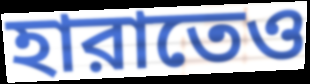
হারাতেও